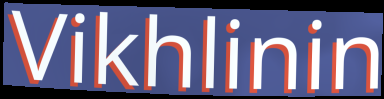
Vikhlinin